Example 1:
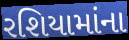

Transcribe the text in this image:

રશિયામાંના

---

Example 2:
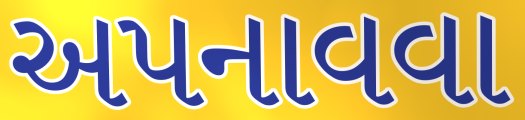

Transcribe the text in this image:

અપનાવવા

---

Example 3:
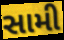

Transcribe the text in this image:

સામી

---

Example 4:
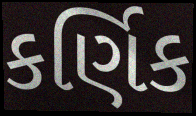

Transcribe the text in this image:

કર્ણિક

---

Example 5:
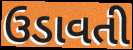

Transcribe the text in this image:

ઉડાવતી